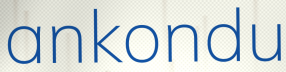
ankondu